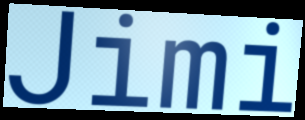
Jimi